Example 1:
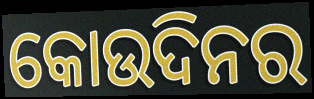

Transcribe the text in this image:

କୋଉଦିନର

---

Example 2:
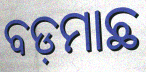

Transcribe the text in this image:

ବଡ଼ମାଛ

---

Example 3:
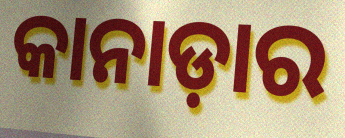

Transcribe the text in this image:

କାନାଡ଼ାର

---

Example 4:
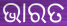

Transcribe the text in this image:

ଭାରତ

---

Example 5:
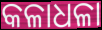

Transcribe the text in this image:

କଳାଧଳା